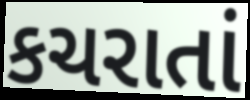
કચરાતાં